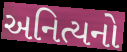
અનિત્યનો